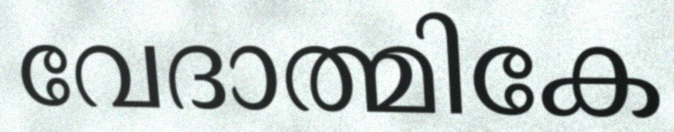
വേദാത്മികേ